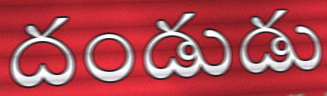
దండుడు